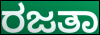
ರಜತಾ